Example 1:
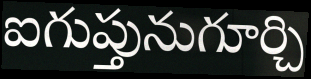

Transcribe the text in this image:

ఐగుప్తునుగూర్చి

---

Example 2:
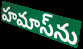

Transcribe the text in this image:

హమాస్‌ను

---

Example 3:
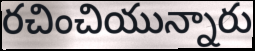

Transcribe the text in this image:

రచించియున్నారు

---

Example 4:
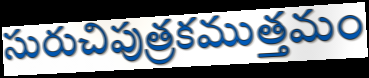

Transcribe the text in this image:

సురుచిపుత్రకముత్తమం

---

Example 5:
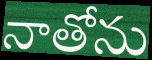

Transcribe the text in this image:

నాతోను